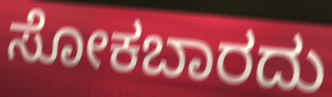
ಸೋಕಬಾರದು